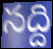
సద్ది